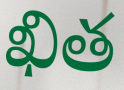
ఖిత